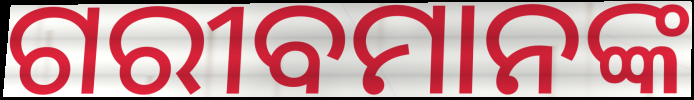
ଗରୀବମାନଙ୍କ